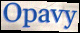
Opavy